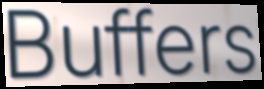
Buffers